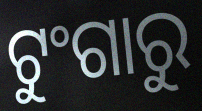
ଟୁଂଗାରୁ